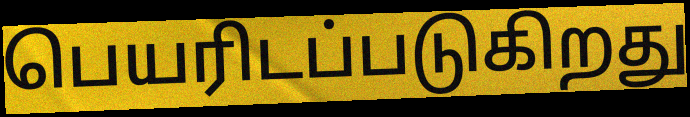
பெயரிடப்படுகிறது